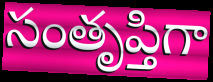
సంతృప్తిగా